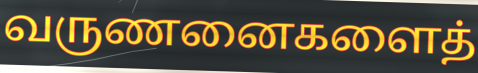
வருணனைகளைத்